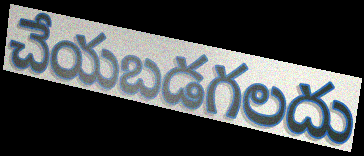
చేయబడగలదు